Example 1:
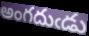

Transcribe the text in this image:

అంగదుఁడు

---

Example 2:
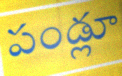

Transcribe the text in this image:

పండ్లూ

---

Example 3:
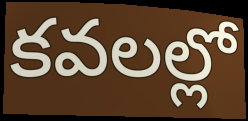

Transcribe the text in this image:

కవలల్లో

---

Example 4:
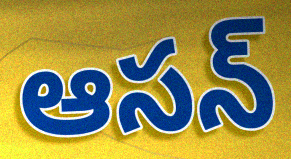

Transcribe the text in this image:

ఆసన్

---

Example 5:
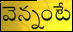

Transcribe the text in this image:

వెన్నంటే